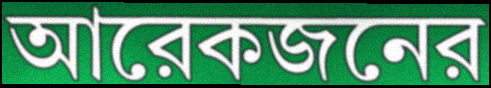
আরেকজনের